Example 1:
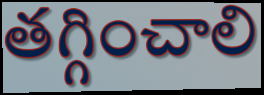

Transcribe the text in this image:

తగ్గించాలి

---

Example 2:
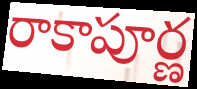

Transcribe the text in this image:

రాకాపూర్ణ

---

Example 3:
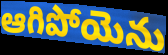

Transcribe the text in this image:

ఆగిపోయెను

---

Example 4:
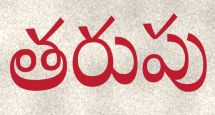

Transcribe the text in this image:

తరుపు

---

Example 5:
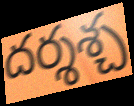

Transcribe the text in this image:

దర్శశ్చ